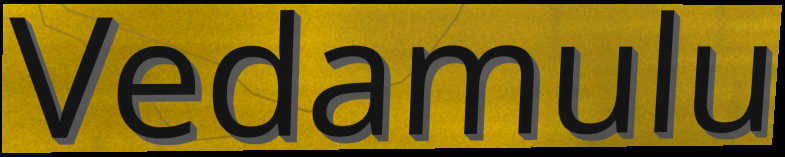
Vedamulu